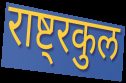
राष्ट्रकुल